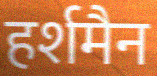
हर्शमैन